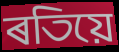
ৰতিয়ে